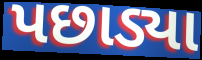
પછાડ્યા